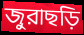
জুরাছড়ি